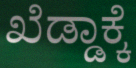
ಖೆಡ್ಡಾಕ್ಕೆ